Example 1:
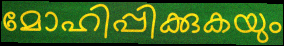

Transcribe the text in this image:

മോഹിപ്പിക്കുകയും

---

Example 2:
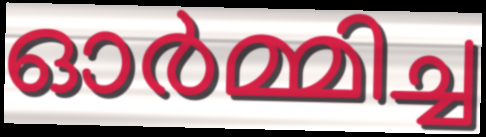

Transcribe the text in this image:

ഓർമ്മിച്ച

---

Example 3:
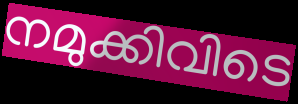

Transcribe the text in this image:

നമുക്കിവിടെ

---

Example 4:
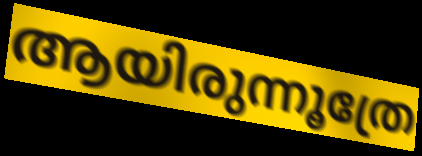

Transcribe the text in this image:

ആയിരുന്നൂത്രേ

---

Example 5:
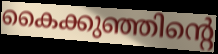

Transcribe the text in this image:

കൈക്കുഞ്ഞിന്റെ